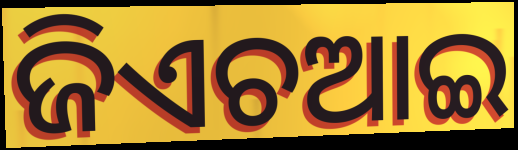
ଜିଏଚଆଇ